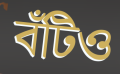
বঁটিও